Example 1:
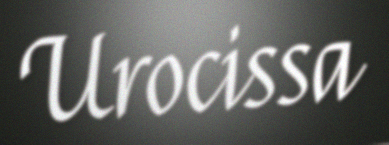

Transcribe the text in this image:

Urocissa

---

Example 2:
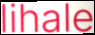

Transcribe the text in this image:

lihale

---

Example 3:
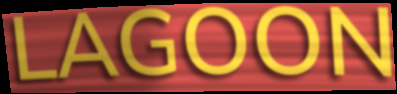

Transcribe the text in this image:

LAGOON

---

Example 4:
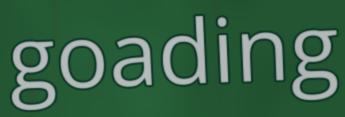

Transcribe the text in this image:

goading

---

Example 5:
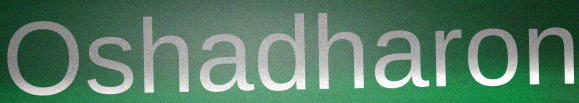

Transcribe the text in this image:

Oshadharon